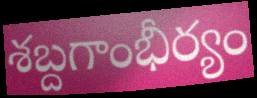
శబ్దగాంభీర్యం